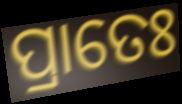
ପ୍ରାତେଃ